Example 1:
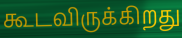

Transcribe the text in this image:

கூடவிருக்கிறது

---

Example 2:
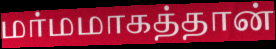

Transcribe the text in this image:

மர்மமாகத்தான்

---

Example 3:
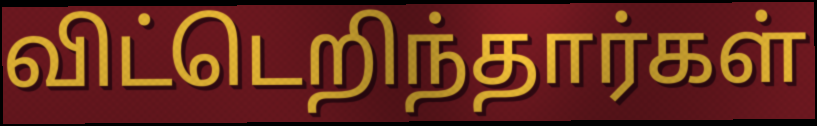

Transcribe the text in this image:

விட்டெறிந்தார்கள்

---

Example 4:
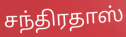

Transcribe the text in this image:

சந்திரதாஸ்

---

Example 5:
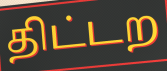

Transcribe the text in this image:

திட்டற